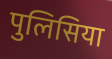
पुलिसिया